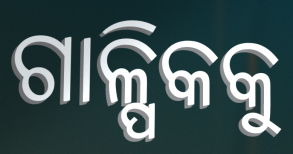
ଗାଳ୍ପିକକୁ